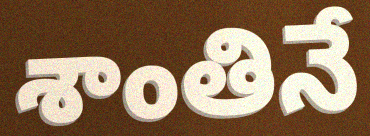
శాంతినే